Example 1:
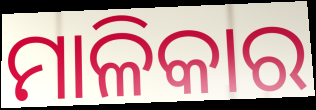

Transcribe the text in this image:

ମାଳିକାର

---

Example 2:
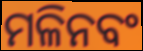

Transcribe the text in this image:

ମଳିନବଂ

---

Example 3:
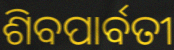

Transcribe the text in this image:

ଶିବପାର୍ବତୀ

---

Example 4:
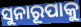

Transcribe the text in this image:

ସୁନାରୂପାକୁ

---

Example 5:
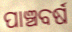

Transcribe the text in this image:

ପାଞ୍ଚବର୍ଷ